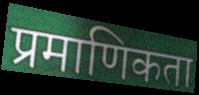
प्रमाणिकता